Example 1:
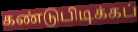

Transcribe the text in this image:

கண்டுபிடிக்கப்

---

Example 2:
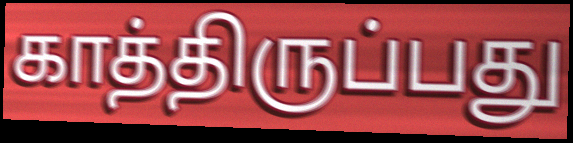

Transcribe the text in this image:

காத்திருப்பது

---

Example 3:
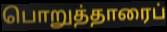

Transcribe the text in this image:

பொறுத்தாரைப்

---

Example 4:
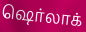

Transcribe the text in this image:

ஷெர்லாக்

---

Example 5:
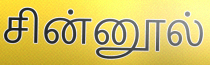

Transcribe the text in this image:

சின்னூல்